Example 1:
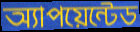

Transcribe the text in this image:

অ্যাপয়েন্টেড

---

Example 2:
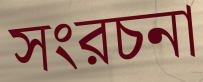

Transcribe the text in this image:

সংরচনা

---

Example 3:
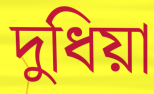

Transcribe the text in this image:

দুধিয়া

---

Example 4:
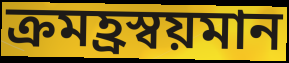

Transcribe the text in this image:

ক্রমহ্রস্বয়মান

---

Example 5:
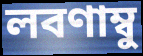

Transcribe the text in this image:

লবণাম্বু